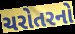
ચરોતરનો